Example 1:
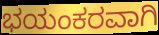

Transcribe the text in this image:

ಭಯಂಕರವಾಗಿ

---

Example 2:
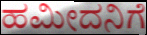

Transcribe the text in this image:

ಹಮೀದನಿಗೆ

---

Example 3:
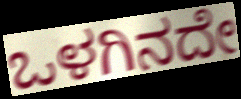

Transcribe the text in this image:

ಒಳಗಿನದೇ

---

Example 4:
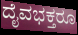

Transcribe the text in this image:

ದೈವಭಕ್ತರೂ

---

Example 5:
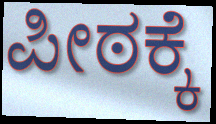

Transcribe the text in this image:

ಪೀಠಕ್ಕೆ